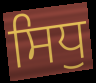
ਸਿਧੁ